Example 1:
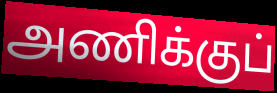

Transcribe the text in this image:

அணிக்குப்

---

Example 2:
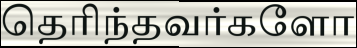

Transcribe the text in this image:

தெரிந்தவர்களோ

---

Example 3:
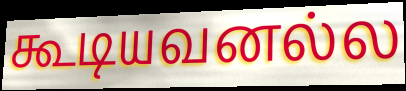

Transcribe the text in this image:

கூடியவனல்ல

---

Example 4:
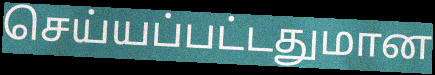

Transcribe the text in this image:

செய்யப்பட்டதுமான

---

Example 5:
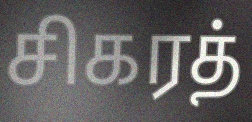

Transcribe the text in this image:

சிகரத்